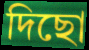
দিছো